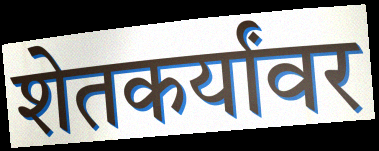
शेतकर्यांवर